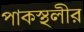
পাকস্থলীর